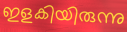
ഇളകിയിരുന്നു